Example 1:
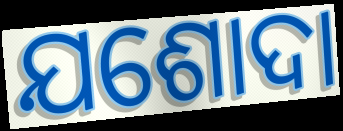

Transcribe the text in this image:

ଯଶୋଦା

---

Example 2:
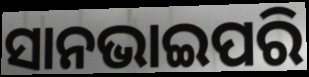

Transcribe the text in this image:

ସାନଭାଇପରି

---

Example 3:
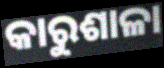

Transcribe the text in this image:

କାରୁଶାଳା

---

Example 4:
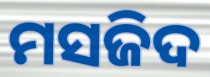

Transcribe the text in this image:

ମସଜିଦ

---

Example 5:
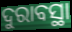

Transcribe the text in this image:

ଦୁରାବସ୍ଥା